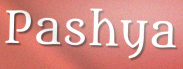
Pashya